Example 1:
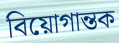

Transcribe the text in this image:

বিয়োগান্তক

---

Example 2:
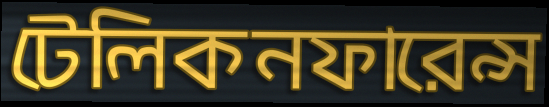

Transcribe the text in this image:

টেলিকনফারেন্স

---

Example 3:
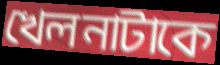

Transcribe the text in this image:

খেলনাটাকে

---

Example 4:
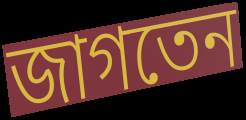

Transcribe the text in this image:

জাগতেন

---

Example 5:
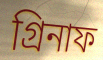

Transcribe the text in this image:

গ্রিনাফ